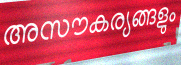
അസൗകര്യങ്ങളും